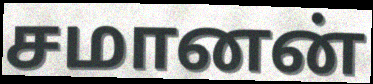
சமானன்